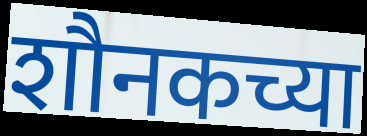
शौनकच्या